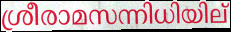
ശ്രീരാമസന്നിധിയില്